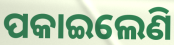
ପକାଇଲେଣି